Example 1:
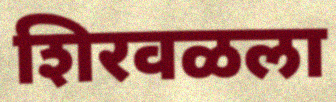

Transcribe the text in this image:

शिरवळला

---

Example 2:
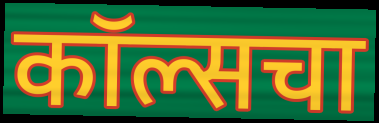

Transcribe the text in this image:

कॉल्सचा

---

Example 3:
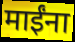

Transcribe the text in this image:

माईंना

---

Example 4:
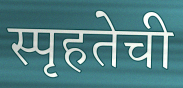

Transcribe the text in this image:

स्पृहतेची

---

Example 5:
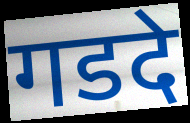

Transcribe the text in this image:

गडदे